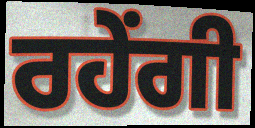
ਰਹੇਂਗੀ